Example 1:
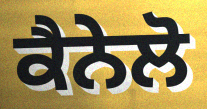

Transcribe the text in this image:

ਕੈਨੇਲੋ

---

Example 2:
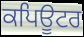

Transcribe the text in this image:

ਕਪਿਊਟਰ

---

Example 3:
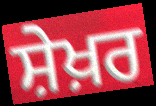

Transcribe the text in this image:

ਸ਼ੇਖ਼ਰ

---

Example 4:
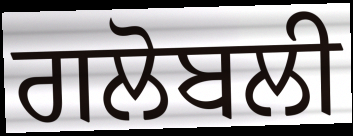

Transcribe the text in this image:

ਗਲੋਬਲੀ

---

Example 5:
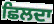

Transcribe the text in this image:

ਛਿਲਦਾ